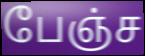
பேஞ்ச